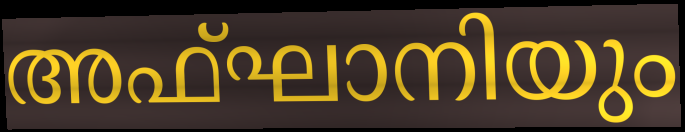
അഫ്ഘാനിയും